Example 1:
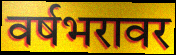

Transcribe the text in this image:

वर्षभरावर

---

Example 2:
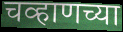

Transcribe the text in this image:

चव्हाणच्या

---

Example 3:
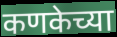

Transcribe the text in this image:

कणकेच्या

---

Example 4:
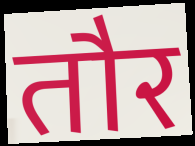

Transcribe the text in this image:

तौर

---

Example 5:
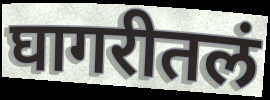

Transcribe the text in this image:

घागरीतलं